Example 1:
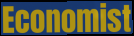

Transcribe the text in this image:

Economist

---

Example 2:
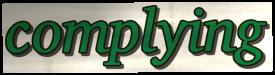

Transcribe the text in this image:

complying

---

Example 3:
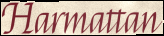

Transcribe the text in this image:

Harmattan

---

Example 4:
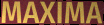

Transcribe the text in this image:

MAXIMA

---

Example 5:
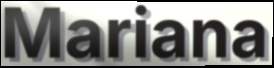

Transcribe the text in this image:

Mariana